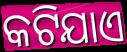
କଟିଯାଏ